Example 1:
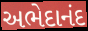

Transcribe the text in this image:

અભેદાનંદ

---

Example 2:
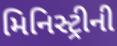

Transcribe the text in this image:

મિનિસ્ટ્રીની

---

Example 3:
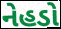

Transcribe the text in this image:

નેહડો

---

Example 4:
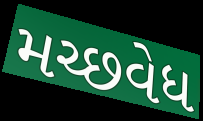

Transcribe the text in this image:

મચ્છવેધ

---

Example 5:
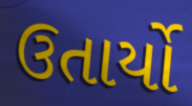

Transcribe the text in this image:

ઉતાર્યો